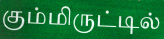
கும்மிருட்டில்